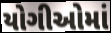
યોગીઓમાં